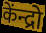
केंन्द्रो